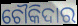
ଚୌକିଦାର